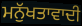
ਮਨੁੱਖਤਾਵਾਦੀ